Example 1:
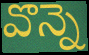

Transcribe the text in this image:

వొన్నె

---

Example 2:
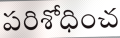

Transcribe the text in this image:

పరిశోధించ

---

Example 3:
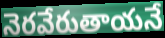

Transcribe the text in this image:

నెరవేరుతాయనే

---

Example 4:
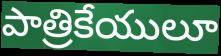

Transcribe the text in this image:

పాత్రికేయులూ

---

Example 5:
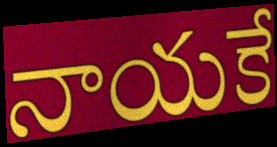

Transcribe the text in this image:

నాయకే